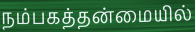
நம்பகத்தன்மையில்